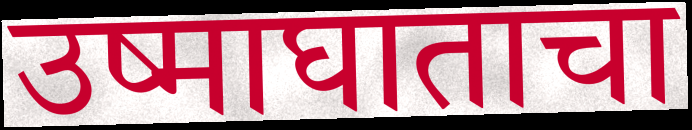
उष्माघाताचा